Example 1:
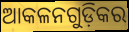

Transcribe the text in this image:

ଆକଳନଗୁଡ଼ିକର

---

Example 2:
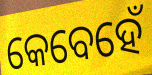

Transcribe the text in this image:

କେବେହେଁ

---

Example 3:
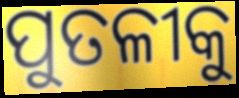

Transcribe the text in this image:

ପୁତଳୀକୁ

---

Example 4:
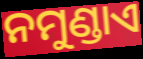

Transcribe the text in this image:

ନମୁଣ୍ଡାଏ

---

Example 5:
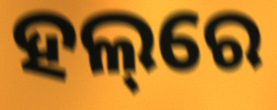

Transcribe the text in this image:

ହଲ୍‌ରେ